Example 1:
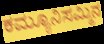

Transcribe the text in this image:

ಕಮ್ಯೂನಿಸಮ್ಮಿನ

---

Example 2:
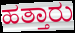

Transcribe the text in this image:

ಹತ್ತಾರು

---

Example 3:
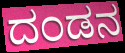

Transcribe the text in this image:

ದಂಡನ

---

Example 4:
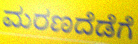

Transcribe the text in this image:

ಮರಣದೆಡೆಗೆ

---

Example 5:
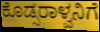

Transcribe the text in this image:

ಕೊಡ್ಸರಾಳ್ವನಿಗೆ